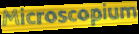
Microscopium